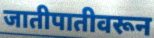
जातीपातीवरून